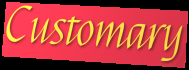
Customary